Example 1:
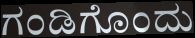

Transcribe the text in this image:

ಗಂಡಿಗೊಂದು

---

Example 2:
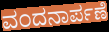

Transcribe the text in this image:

ವಂದನಾರ್ಪಣೆ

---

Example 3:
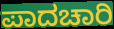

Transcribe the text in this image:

ಪಾದಚಾರಿ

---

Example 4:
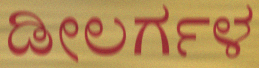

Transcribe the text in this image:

ಡೀಲರ್ಗಳ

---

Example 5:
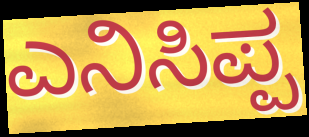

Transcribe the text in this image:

ಎನಿಸಿಪ್ಪ